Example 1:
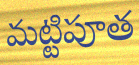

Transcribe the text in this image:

మట్టిపూత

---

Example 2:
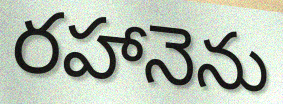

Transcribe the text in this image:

రహానెను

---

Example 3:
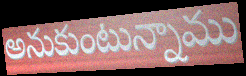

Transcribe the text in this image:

అనుకుంటున్నాము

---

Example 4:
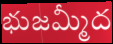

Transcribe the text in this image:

భుజమ్మీద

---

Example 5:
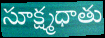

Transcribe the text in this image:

సూక్ష్మధాతు